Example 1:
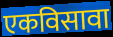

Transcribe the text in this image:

एकविसावा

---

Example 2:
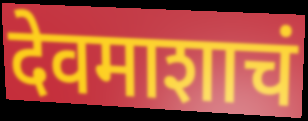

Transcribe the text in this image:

देवमाशाचं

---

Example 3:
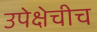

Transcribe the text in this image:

उपेक्षेचीच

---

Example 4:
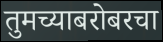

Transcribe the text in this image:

तुमच्याबरोबरचा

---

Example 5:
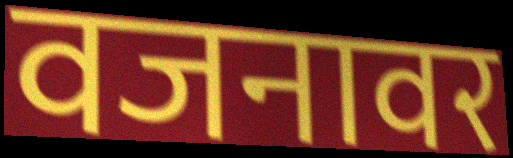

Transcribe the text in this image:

वजनावर